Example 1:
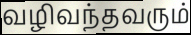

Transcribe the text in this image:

வழிவந்தவரும்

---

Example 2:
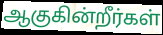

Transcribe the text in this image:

ஆகுகின்றீர்கள்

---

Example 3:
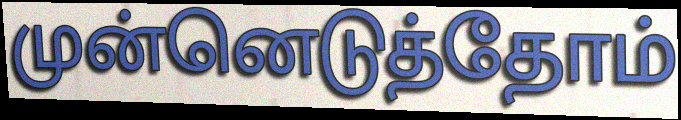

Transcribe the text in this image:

முன்னெடுத்தோம்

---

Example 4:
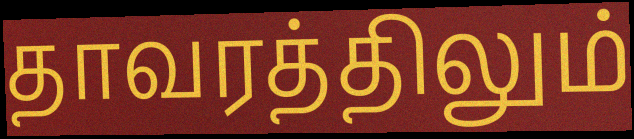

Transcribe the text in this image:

தாவரத்திலும்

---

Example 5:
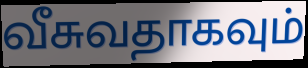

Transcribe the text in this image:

வீசுவதாகவும்